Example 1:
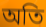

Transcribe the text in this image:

অতি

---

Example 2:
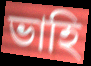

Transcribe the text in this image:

ভাহি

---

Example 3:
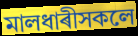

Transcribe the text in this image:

মালধাৰীসকলে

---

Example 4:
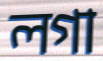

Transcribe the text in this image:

লগা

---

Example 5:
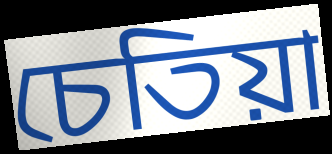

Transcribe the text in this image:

চেতিয়া